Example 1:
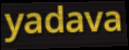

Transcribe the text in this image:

yadava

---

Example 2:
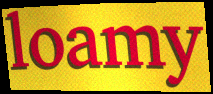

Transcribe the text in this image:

loamy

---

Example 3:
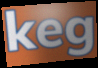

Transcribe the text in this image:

keg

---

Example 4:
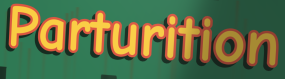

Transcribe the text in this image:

Parturition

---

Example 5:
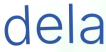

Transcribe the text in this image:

dela